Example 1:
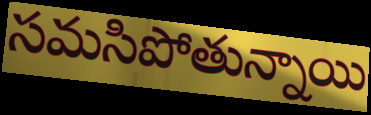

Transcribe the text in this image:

సమసిపోతున్నాయి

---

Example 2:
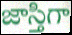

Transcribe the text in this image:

జాస్తిగా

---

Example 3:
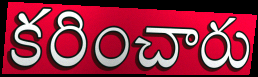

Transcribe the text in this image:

కరించారు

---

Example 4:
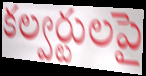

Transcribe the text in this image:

కల్వర్టులపై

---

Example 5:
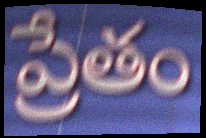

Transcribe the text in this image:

ప్రేతం